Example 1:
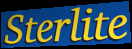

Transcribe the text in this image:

Sterlite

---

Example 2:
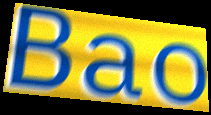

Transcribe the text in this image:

Bao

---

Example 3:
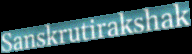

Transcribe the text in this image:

Sanskrutirakshak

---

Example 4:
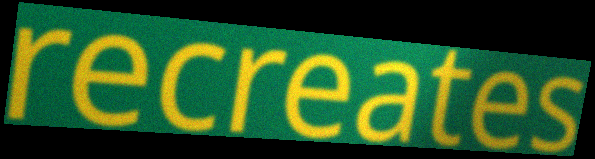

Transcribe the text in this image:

recreates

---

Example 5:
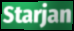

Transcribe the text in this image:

Starjan